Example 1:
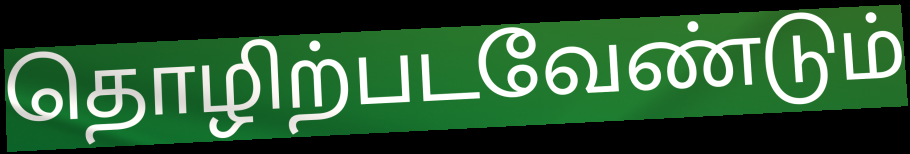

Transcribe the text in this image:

தொழிற்படவேண்டும்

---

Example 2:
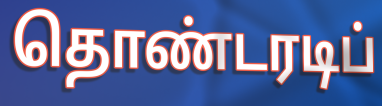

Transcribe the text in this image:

தொண்டரடிப்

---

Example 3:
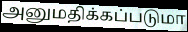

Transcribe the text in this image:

அனுமதிக்கப்படுமா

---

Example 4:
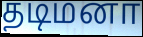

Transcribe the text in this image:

தடிமனா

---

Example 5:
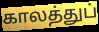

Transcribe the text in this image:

காலத்துப்